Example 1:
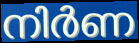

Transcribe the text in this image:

നിർണ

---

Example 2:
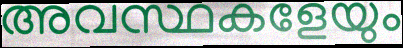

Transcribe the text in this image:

അവസ്ഥകളേയും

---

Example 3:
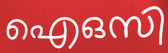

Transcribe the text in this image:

ഐഒസി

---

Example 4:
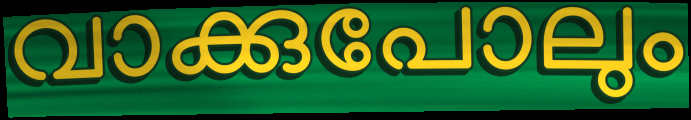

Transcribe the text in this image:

വാക്കുപോലും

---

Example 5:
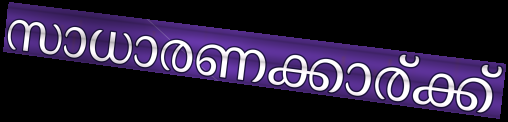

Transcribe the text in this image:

സാധാരണക്കാര്ക്ക്